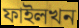
ফাইলখন